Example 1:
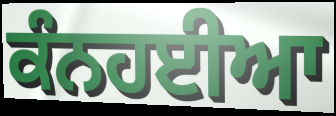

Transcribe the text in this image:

ਕੰਨਹਈਆ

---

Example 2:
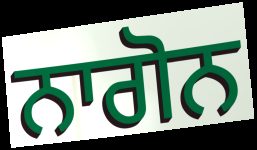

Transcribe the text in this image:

ਨਾਗੋਨ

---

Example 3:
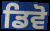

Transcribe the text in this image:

ਡਿਵੋ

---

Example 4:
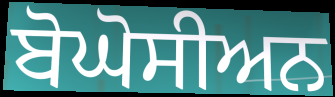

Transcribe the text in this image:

ਬੋਘੋਸੀਅਨ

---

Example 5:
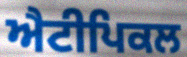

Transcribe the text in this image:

ਐਟੀਪਿਕਲ